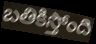
బతికిస్తోంది